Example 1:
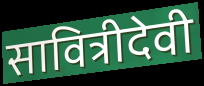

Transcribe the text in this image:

सावित्रीदेवी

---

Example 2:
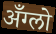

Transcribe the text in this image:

अँग्लो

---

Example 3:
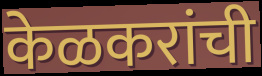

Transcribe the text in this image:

केळकरांची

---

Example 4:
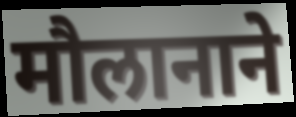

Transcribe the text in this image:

मौलानाने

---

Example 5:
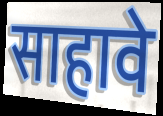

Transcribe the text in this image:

साहावे